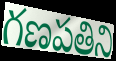
గణపతిని